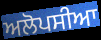
ਅਲੋਪਸੀਆ